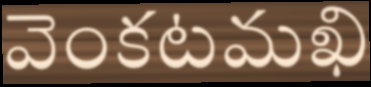
వెంకటమఖి